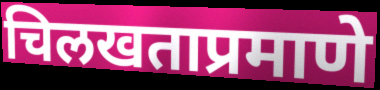
चिलखताप्रमाणे